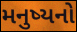
મનુષ્યનો